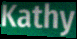
Kathy